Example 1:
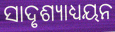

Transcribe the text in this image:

ସାଦୃଶ୍ୟାଧ୍ୟୟନ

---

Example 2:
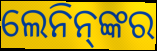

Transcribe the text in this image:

ଲେନିନ୍‌ଙ୍କର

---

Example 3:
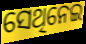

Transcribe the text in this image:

ସେଥିନେଇ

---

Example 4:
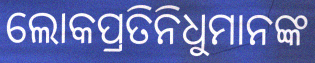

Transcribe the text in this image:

ଲୋକପ୍ରତିନିଧୁମାନଙ୍କ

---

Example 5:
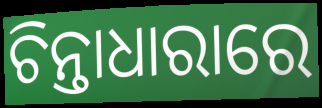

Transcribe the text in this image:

ଚିନ୍ତାଧାରାରେ